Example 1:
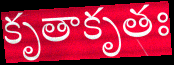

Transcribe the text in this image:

కృతాకృతః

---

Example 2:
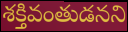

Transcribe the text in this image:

శక్తివంతుడనని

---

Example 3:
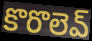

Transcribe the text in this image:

కొరొలెవ్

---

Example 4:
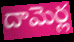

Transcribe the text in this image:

దామెర్ల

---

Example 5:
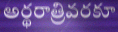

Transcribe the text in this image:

అర్థరాత్రివరకూ